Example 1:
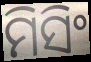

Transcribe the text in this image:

ମିସିଂ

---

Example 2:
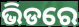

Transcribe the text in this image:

ଭିଡରେ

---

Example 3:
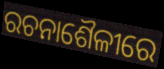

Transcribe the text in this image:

ରଚନାଶୈଳୀରେ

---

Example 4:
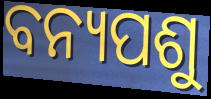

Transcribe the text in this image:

ବନ୍ୟପଶୁ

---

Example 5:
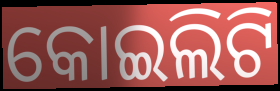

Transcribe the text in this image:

କୋଇଲିଟି